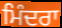
ਮਿੰਦਰਾ